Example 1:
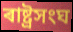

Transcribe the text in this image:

ৰাষ্ট্ৰসংঘ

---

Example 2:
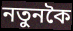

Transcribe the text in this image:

নতুনকৈ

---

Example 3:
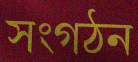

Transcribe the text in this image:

সংগঠন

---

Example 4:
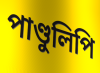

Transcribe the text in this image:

পাণ্ডুলিপি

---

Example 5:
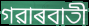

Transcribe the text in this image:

গৱাৰবাতী